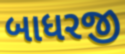
બાધરજી